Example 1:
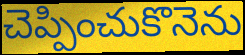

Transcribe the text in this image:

చెప్పించుకొనెను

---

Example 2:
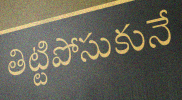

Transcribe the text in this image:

తిట్టిపోసుకునే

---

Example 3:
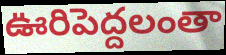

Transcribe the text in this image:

ఊరిపెద్దలంతా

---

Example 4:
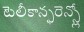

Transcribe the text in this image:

టెలీకాన్ఫరెన్స్లో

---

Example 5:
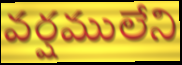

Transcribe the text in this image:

వర్షములేని